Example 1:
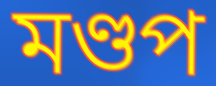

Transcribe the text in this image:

মণ্ডপ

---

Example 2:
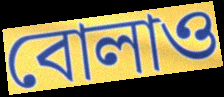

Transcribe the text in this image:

বোলাও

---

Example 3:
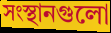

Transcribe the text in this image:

সংস্থানগুলো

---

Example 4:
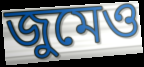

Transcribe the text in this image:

জুমেও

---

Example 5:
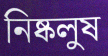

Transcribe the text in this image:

নিষ্কলুষ